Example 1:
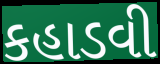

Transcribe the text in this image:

કહાડવી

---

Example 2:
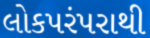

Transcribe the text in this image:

લોકપરંપરાથી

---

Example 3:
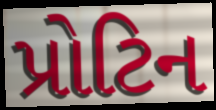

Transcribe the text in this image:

પ્રોટિન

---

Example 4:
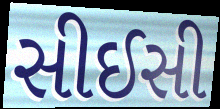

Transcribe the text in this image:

સીઈસી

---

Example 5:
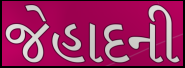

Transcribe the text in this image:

જેહાદની